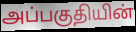
அப்பகுதியின்